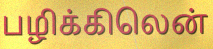
பழிக்கிலென்